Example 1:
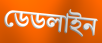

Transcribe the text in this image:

ডেডলাইন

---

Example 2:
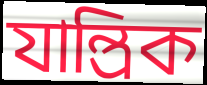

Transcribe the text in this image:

যান্ত্রিক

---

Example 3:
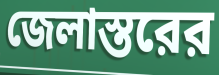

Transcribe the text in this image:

জেলাস্তরের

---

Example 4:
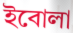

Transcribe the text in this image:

ইবোলা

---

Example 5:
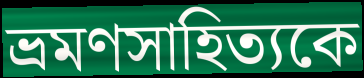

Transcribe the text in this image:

ভ্রমণসাহিত্যকে